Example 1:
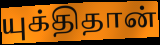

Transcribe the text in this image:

யுக்திதான்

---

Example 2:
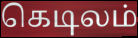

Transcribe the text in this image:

கெடிலம்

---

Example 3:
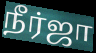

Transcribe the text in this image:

நீர்ஜா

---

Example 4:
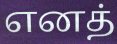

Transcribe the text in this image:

எனத்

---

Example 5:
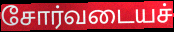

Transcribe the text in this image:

சோர்வடையச்